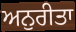
ਅਨੁਰੀਤਾ